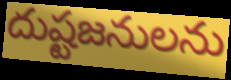
దుష్టజనులను